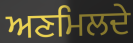
ਅਣਮਿਲਦੇ